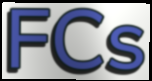
FCs